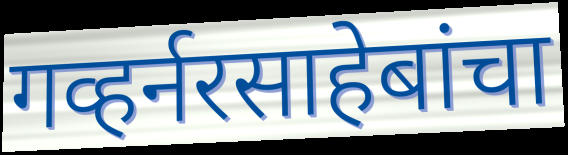
गव्हर्नरसाहेबांचा